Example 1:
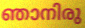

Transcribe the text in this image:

ഞാനിരു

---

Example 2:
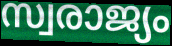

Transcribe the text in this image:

സ്വരാജ്യം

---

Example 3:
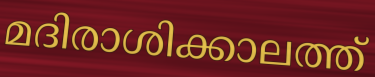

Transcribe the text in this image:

മദിരാശിക്കാലത്ത്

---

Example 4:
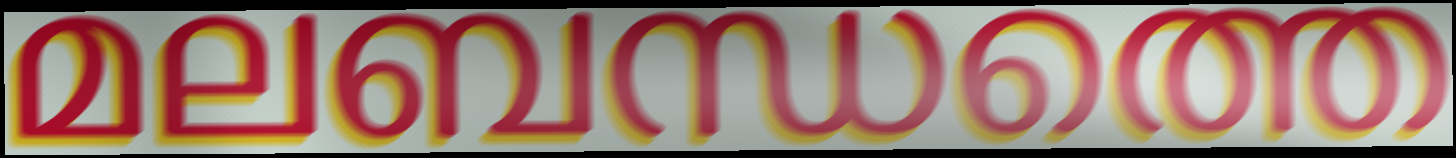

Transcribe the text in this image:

മലബന്ധത്തെ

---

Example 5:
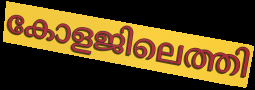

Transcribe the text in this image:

കോളജിലെത്തി